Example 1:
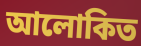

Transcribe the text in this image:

আলোকিত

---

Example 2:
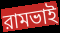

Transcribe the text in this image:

রামভাই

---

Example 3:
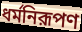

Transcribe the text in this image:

ধর্মনিরূপণ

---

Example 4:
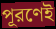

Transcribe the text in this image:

পূরণেই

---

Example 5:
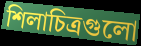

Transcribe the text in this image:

শিলাচিত্রগুলো